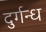
दुर्गन्‍ध